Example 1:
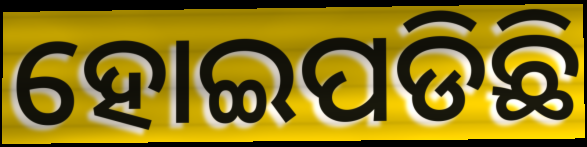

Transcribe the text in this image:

ହୋଇପଡିଛି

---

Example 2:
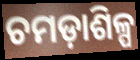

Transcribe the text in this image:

ଚମଡ଼ାଶିଳ୍ପ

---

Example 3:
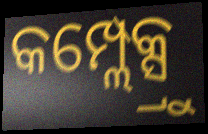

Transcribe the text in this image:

କମ୍ପ୍ଲେକ୍ସ୍ରୁ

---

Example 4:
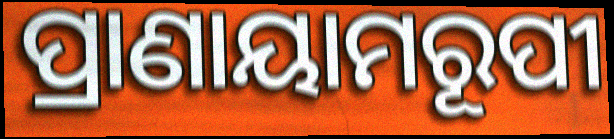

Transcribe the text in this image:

ପ୍ରାଣାୟାମରୂପୀ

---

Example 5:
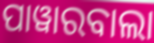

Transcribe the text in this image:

ପାୱାରବାଲା